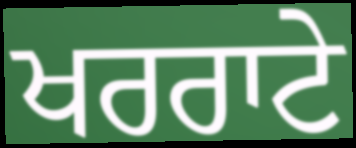
ਖਰਰਾਟੇ